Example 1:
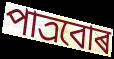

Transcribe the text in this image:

পাত্ৰবোৰ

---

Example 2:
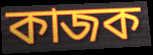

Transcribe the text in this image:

কাজক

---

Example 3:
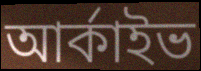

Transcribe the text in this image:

আৰ্কাইভ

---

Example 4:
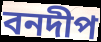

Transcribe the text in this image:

বনদীপ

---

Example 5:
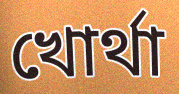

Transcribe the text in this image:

খোৰ্থা